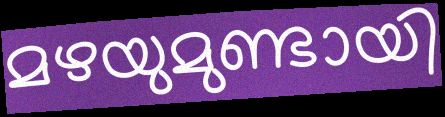
മഴയുമുണ്ടായി